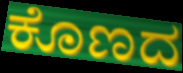
ಕೊಣದ